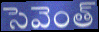
సెవెంత్